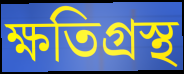
ক্ষতিগ্ৰস্থ